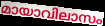
മായാവിലാസം